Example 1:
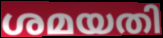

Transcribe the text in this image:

ശമയതി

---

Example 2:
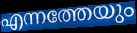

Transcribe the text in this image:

എന്നത്തേയും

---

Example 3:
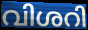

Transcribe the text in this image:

വിശറി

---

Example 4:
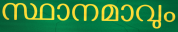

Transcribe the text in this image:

സ്ഥാനമാവും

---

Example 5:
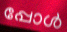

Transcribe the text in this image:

പ്പോൾ